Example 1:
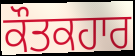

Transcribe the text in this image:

ਕੌਤਕਹਾਰ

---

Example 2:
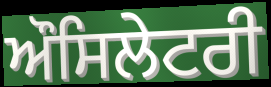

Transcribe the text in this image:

ਔਸਿਲੇਟਰੀ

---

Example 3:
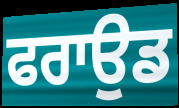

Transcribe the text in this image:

ਫਰਾਉਡ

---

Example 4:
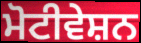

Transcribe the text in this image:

ਮੋਟੀਵੇਸ਼ਨ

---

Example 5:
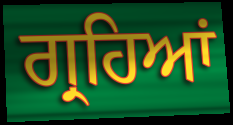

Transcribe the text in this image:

ਗ੍ਰਹਿਆਂ